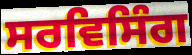
ਸਰਵਿਸਿੰਗ